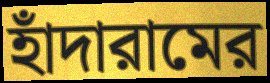
হাঁদারামের